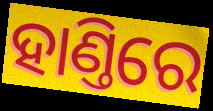
ହାଣ୍ତିରେ